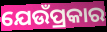
ଯେଉଁପ୍ରକାର